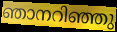
ഞാനറിഞ്ഞു